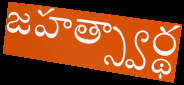
జహత్స్వార్థ